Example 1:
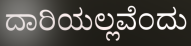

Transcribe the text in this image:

ದಾರಿಯಲ್ಲವೆಂದು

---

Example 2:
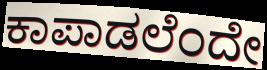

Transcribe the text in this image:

ಕಾಪಾಡಲೆಂದೇ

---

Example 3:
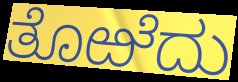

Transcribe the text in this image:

ತೊಱೆದು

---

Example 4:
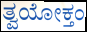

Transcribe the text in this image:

ತ್ವಯೋಕ್ತಂ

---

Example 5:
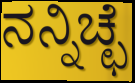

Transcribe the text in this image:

ನನ್ನಿಚ್ಛೆ